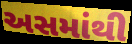
અસમાંથી